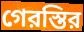
গেরস্তির